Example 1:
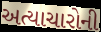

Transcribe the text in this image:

અત્યાચારોની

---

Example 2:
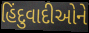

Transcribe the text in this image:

હિંદુવાદીઓને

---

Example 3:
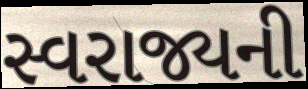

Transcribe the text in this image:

સ્વરાજ્યની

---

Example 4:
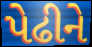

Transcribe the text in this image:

પેઢીને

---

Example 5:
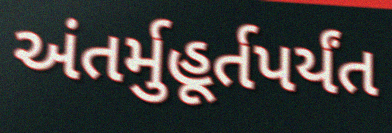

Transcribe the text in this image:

અંતર્મુહૂર્તપર્યંત